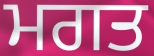
ਮਗਤ